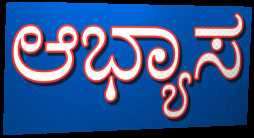
ಆಭ್ಯಾಸ